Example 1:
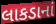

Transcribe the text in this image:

લાકડાનાં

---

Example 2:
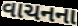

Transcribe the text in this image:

વાચનના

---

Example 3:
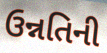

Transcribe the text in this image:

ઉન્નતિની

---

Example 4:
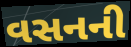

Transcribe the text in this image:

વસનની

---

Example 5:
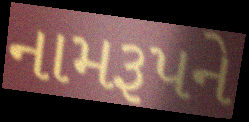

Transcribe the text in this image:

નામરૂપને